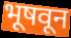
भूषवून